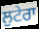
ਲੁਟੇਰਾ